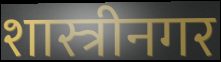
शास्त्रीनगर